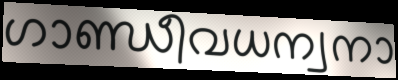
ഗാണ്ഡീവധന്വനാ